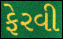
ફેરવી